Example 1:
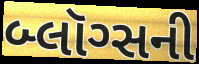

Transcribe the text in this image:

બ્લૉગ્સની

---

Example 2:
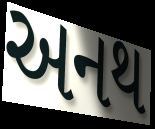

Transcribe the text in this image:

અનથ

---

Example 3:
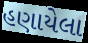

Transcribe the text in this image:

હણાયેલા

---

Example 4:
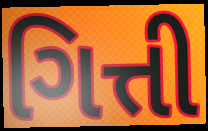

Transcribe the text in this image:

ગિત્તી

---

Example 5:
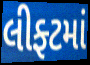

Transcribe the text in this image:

લીફ્ટમાં